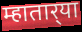
म्हातार्‍या